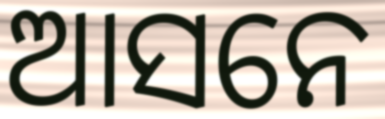
ଆସନେ